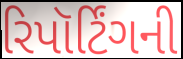
રિપૉર્ટિંગની